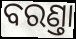
ବରଣ୍ତା